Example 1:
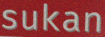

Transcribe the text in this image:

sukan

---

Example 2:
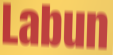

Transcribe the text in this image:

Labun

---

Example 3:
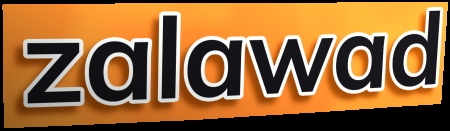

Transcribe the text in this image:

zalawad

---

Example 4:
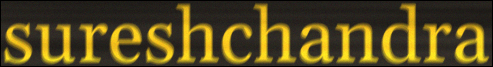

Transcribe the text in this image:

sureshchandra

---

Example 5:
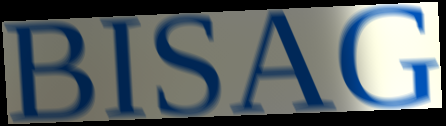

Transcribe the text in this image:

BISAG